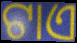
ଟାଏ